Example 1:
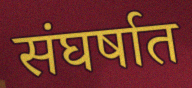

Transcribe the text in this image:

संघर्षात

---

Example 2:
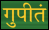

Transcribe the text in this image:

गुपीतं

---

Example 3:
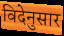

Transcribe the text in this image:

विदेनुसार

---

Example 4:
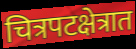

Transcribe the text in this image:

चित्रपटक्षेत्रात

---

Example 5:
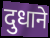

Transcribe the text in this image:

दुधाने